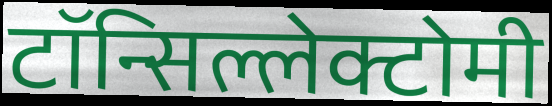
टॉन्सिल्लेक्टोमी